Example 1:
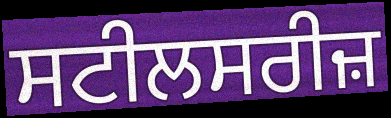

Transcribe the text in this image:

ਸਟੀਲਸਰੀਜ਼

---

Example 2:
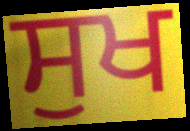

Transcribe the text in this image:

ਸੁਖ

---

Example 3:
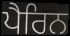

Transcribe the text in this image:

ਪੈਰਿਨ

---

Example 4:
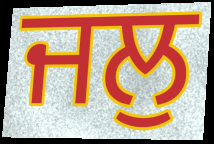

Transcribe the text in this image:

ਜਲੁ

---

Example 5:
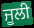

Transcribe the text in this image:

ਜੂਲੀ